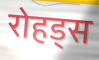
रोहड्स